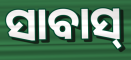
ସାବାସ୍